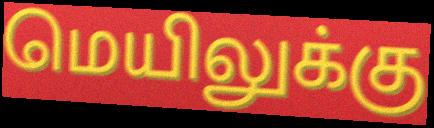
மெயிலுக்கு